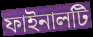
ফাইনালটি